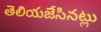
తెలియజేసినట్లు